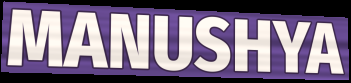
MANUSHYA